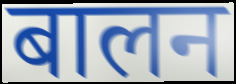
बालन